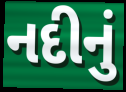
નદીનું